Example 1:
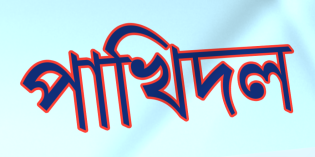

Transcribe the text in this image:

পাখিদল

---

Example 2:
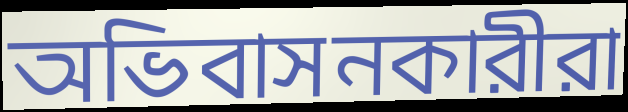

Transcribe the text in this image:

অভিবাসনকারীরা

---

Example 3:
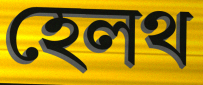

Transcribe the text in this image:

হেলথ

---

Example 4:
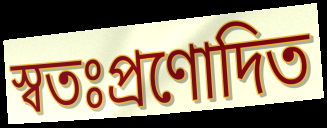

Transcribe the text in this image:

স্বতঃপ্রণোদিত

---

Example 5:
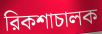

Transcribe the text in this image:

রিকশাচালক